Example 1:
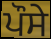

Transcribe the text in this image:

ਪੌਸੇ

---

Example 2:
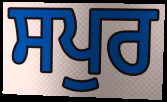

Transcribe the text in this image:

ਸਪੁਰ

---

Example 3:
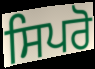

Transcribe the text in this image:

ਸਿਪਰੋ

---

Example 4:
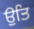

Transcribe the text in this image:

ਉਤਿ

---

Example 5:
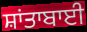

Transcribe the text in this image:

ਸ਼ਾਂਤਾਬਾਈ